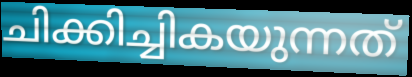
ചിക്കിച്ചികയുന്നത്